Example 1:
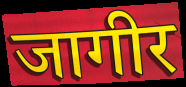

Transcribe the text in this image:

जागीर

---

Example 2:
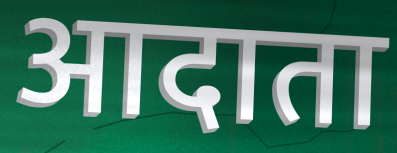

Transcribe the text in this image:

आदाता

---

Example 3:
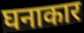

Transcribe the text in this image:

घनाकार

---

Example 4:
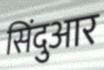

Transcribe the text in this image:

सिंदुआर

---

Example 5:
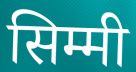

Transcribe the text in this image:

सिम्मी